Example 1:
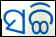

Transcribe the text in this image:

ସଚ୍ଚି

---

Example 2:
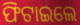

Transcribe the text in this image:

ଫିଟାଇଲେ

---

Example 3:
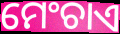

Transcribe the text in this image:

ମେଂଚାଏ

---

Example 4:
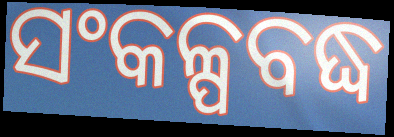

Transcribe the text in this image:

ସଂକଳ୍ପବଦ୍ଧ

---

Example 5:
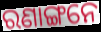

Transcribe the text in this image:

ରଣାଙ୍ଗନେ